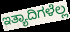
ಇತ್ಯಾದಿಗಳೆಲ್ಲ